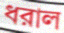
ধরাল